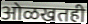
ओळखतही